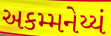
અકમ્મનેય્યં